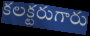
కలక్టరుగారు